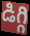
డిగ్గి